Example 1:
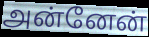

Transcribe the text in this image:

அன்னேன்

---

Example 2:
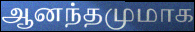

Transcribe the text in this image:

ஆனந்தமுமாக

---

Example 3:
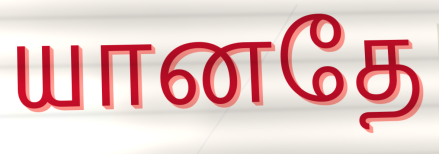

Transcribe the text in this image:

யானதே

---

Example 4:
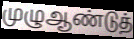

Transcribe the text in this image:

முழுஆண்டுத்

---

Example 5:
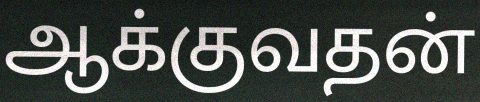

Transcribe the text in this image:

ஆக்குவதன்